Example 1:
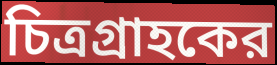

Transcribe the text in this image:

চিত্রগ্রাহকের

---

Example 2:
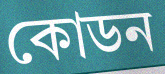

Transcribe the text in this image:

কোডন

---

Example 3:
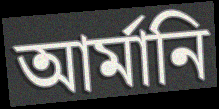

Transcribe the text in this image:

আর্মানি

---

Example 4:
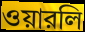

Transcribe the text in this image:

ওয়ারলি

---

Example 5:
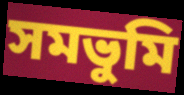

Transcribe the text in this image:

সমভুমি